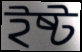
ইষ্ট